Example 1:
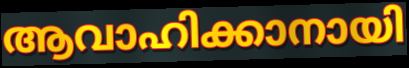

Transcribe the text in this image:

ആവാഹിക്കാനായി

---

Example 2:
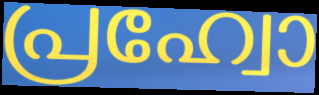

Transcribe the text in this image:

പ്രഹ്വോ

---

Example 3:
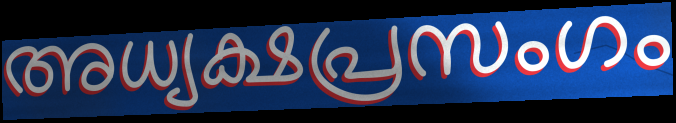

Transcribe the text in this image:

അധ്യക്ഷപ്രസംഗം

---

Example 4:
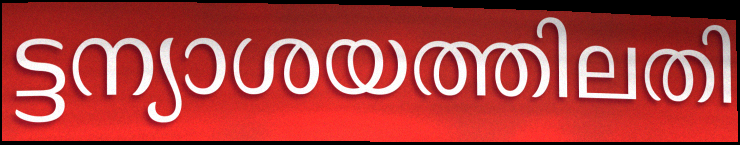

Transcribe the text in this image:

ട്ടന്യാശയത്തിലതി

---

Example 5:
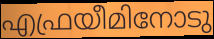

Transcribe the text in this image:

എഫ്രയീമിനോടു